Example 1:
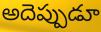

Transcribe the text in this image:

అదెప్పుడూ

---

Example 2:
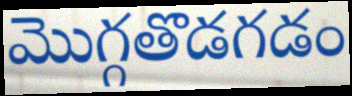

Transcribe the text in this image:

మొగ్గతొడగడం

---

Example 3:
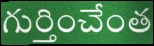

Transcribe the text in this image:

గుర్తించేంత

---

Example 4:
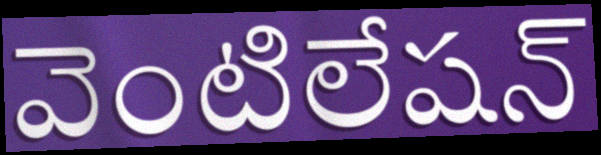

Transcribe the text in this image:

వెంటిలేషన్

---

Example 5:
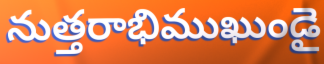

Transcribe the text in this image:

నుత్తరాభిముఖుండై